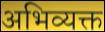
अभिव्यक्त